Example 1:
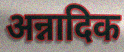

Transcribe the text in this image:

अन्नादिक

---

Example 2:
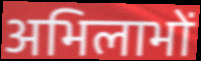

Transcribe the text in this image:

अभिलाभों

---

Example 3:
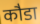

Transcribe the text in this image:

कौडा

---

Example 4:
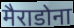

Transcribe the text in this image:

मैराडोना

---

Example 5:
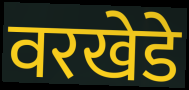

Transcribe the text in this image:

वरखेडे